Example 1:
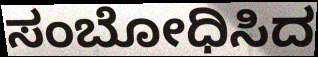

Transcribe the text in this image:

ಸಂಬೋಧಿಸಿದ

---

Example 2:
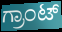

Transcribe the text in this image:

ಗ್ರಾಂಟ್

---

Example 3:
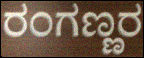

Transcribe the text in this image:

ರಂಗಣ್ಣರ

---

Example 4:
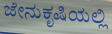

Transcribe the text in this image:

ಜೇನುಕೃಷಿಯಲ್ಲಿ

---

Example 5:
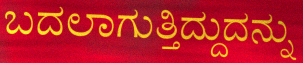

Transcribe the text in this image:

ಬದಲಾಗುತ್ತಿದ್ದುದನ್ನು